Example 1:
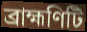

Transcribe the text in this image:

ব্রাহ্মণিটি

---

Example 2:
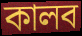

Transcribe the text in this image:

কালব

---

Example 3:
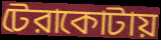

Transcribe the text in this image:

টেরাকোটায়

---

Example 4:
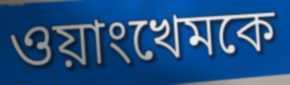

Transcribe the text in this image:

ওয়াংখেমকে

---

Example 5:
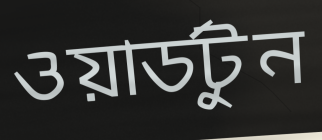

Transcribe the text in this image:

ওয়ার্ডটুন